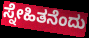
ಸ್ನೇಹಿತನೆಂದು